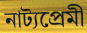
নাট্যপ্ৰেমী